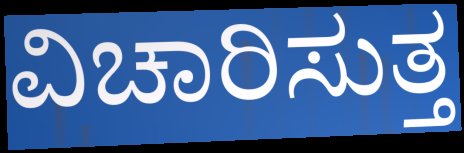
ವಿಚಾರಿಸುತ್ತ